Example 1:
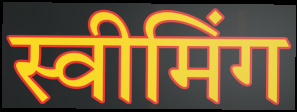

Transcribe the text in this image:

स्वीमिंग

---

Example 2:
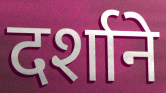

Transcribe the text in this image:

दर्शाने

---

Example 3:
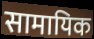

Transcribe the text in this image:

सामायिक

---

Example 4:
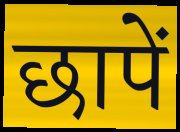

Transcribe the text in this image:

छापें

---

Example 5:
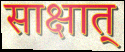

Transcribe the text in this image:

साक्षात्